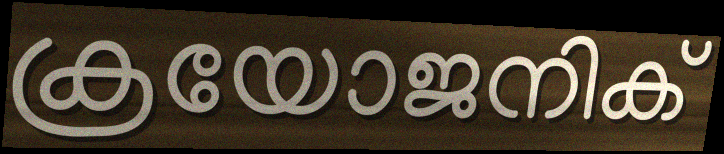
ക്രയോജനിക്